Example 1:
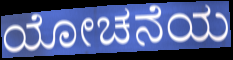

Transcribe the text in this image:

ಯೋಚನೆಯ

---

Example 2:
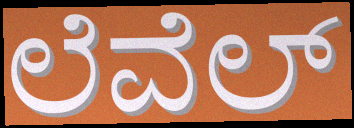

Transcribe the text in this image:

ಲೆವೆಲ್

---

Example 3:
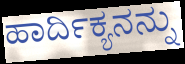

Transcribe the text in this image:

ಹಾರ್ದಿಕ್ಯನನ್ನು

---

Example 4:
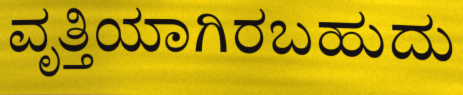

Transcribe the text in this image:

ವೃತ್ತಿಯಾಗಿರಬಹುದು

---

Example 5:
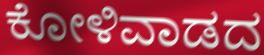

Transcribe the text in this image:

ಕೋಳಿವಾಡದ